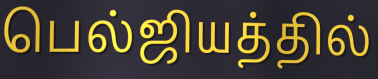
பெல்ஜியத்தில்